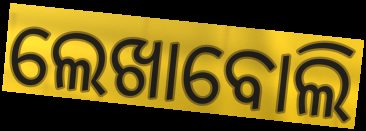
ଲେଖାବୋଲି